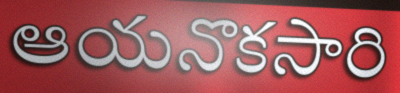
ఆయనొకసారి